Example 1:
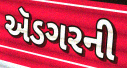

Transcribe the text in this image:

ઍડગરની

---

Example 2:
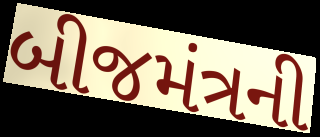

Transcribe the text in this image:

બીજમંત્રની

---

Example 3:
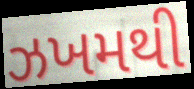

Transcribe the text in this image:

ઝખમથી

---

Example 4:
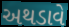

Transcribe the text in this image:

અથડાવે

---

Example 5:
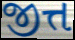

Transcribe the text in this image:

જીત્ત